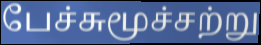
பேச்சுமூச்சற்று